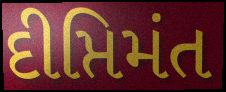
દીપ્તિમંત